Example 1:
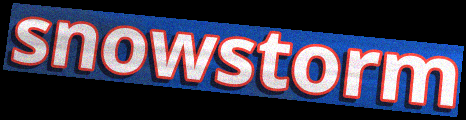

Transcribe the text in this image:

snowstorm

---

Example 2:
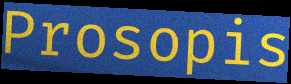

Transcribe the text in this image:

Prosopis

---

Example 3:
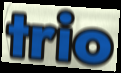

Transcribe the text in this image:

trio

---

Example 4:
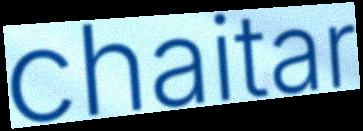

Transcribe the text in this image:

chaitar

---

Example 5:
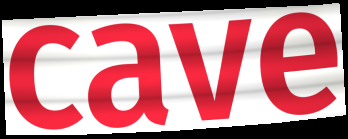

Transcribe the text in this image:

cave